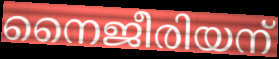
നൈജീരിയന്